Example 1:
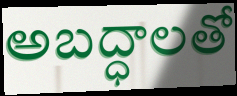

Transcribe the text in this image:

అబద్ధాలతో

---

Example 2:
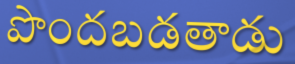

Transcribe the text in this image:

పొందబడతాడు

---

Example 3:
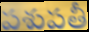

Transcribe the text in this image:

పశుపతీ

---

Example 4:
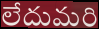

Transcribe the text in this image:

లేదుమరి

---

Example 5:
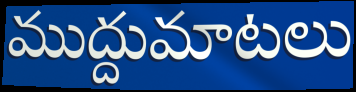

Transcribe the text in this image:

ముద్దుమాటలు